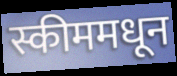
स्कीममधून